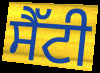
ਸੈੱਟੀ